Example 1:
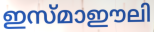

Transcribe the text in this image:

ഇസ്മാഈലി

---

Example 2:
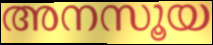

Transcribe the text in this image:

അനസൂയ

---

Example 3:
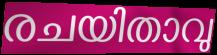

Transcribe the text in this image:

രചയിതാവു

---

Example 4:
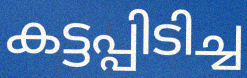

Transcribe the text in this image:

കട്ടപ്പിടിച്ച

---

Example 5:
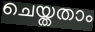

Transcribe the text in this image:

ചെയ്തതാം